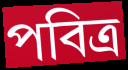
পবিত্ৰ